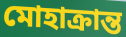
মোহাক্রান্ত